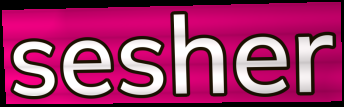
sesher